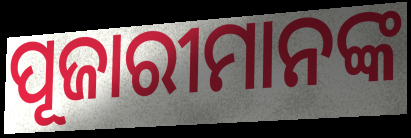
ପୂଜାରୀମାନଙ୍କ